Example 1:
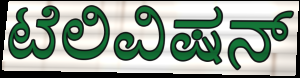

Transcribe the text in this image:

ಟೆಲಿವಿಷನ್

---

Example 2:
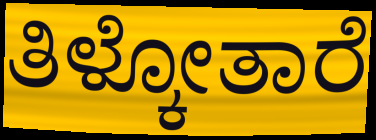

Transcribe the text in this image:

ತಿಳ್ಕೋತಾರೆ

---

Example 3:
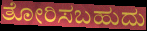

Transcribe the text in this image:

ತೋರಿಸಬಹುದು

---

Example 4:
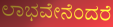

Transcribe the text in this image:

ಲಾಭವೇನೆಂದರೆ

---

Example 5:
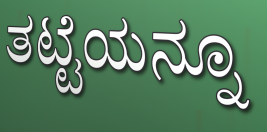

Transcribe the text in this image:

ತಟ್ಟೆಯನ್ನೂ